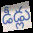
డీడ్లు